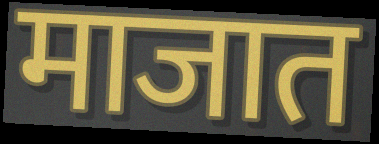
माजात